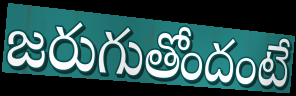
జరుగుతోందంటే